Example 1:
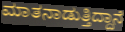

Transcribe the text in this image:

ಮಾತನಾಡುತ್ತಿದ್ದಾನೆ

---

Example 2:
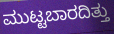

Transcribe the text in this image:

ಮುಟ್ಟಬಾರದಿತ್ತು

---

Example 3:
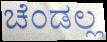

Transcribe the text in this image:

ಚೆಂಡಲ್ಲ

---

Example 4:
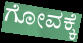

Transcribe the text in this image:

ಗೋವಕ್ಕೆ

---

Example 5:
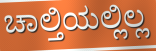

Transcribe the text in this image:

ಚಾಲ್ತಿಯಲ್ಲಿಲ್ಲ